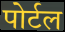
पोर्टल